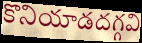
కొనియాడదగ్గవి